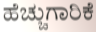
ಹೆಚ್ಚುಗಾರಿಕೆ